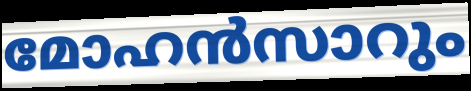
മോഹൻസാറും